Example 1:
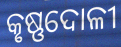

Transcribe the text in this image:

କୃଷ୍ଣଦୋଳୀ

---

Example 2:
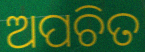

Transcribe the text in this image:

ଅପଚିତ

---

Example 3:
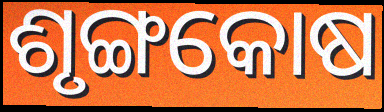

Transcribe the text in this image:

ଶୃଙ୍ଗକୋଷ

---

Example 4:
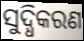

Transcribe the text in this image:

ସୁଦ୍ଧିକରଣ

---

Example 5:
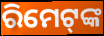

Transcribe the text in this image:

ରିମେଟ୍‍ଙ୍କ